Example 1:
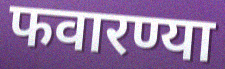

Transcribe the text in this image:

फवारण्या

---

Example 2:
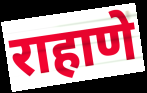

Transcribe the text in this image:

राहाणे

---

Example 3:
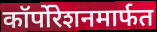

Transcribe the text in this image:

कॉर्पोरेशनमार्फत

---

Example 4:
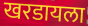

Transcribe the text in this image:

खरडायला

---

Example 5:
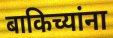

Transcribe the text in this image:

बाकिच्यांना